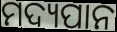
ମଦ୍ୟପାନ